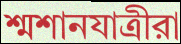
শ্মশানযাত্রীরা